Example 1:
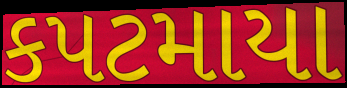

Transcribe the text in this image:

કપટમાયા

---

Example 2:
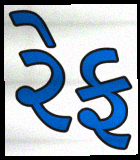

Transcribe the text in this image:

રેફ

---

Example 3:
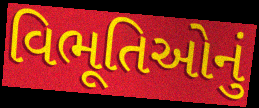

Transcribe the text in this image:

વિભૂતિઓનું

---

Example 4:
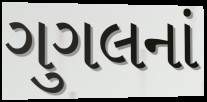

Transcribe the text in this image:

ગુગલનાં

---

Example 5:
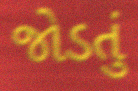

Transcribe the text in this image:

જોડતું